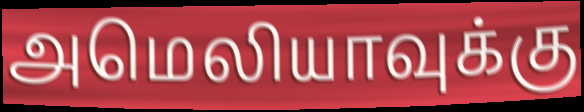
அமெலியாவுக்கு